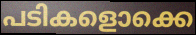
പടികളൊക്കെ